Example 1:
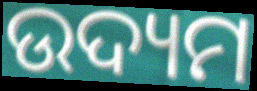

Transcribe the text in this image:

ଉଦ୍ୟମ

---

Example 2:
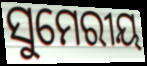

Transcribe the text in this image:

ସୁମେରୀୟ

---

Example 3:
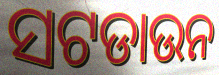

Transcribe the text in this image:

ସଟଡାଉନ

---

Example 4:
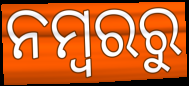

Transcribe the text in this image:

ନମ୍ବରରୁ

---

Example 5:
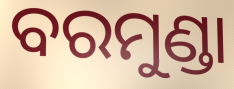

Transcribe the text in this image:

ବରମୁଣ୍ଡା